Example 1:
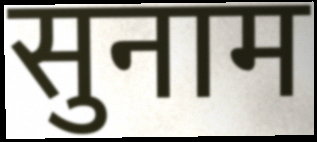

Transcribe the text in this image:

सुनाम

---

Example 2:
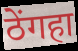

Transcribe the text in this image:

ठेंगहा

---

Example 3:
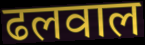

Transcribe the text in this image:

ढलवाल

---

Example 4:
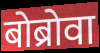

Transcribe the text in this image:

बोब्रोवा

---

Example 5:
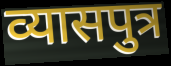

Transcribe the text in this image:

व्यासपुत्र